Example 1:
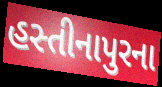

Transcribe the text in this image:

હસ્તીનાપુરના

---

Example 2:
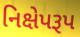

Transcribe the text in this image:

નિક્ષેપરૂપ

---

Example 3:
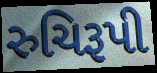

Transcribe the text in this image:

રુચિરૂપી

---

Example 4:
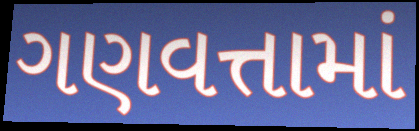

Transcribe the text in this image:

ગણવત્તામાં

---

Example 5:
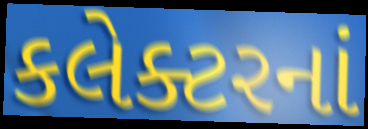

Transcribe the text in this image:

કલેક્ટરનાં